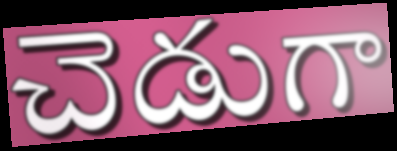
చెడుగా